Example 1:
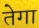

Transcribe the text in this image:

तेगा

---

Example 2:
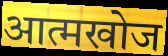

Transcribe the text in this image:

आत्मखोज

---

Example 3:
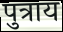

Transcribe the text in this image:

पुत्राय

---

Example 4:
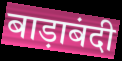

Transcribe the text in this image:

बाड़ाबंदी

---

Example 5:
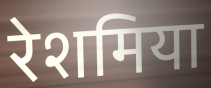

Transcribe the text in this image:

रेशमिया